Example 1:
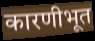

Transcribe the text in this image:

कारणीभूत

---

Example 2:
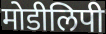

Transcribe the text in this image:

मोडीलिपी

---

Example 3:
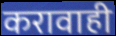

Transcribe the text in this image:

करावाही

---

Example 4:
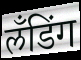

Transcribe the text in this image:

लँडिंग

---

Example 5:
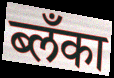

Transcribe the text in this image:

ब्लँका